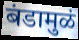
बंडामुळं